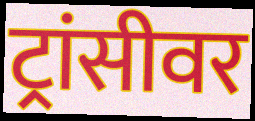
ट्रांसीवर